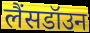
लैंसडॉउन